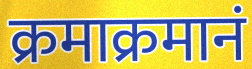
क्रमाक्रमानं